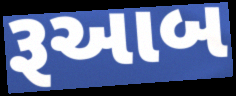
રૂઆબ